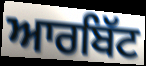
ਆਰਬਿੱਟ